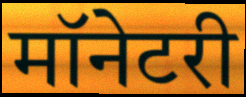
मॉनेटरी